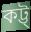
কট্ট্